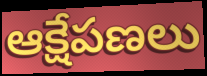
ఆక్షేపణలు